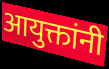
आयुक्तांनी